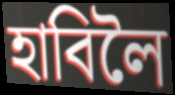
হাবিলৈ